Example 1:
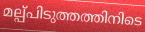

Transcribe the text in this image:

മല്പ്പിടുത്തത്തിനിടെ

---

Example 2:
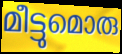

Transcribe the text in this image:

മീട്ടുമൊരു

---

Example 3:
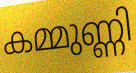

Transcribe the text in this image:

കമ്മുണ്ണി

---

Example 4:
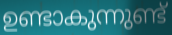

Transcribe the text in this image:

ഉണ്ടാകുന്നുണ്ട്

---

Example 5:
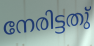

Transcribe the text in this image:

നേരിട്ടതു്